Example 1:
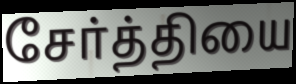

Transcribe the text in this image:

சேர்த்தியை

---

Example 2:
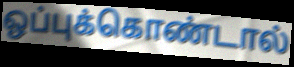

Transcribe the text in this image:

ஒப்புக்கொண்டால்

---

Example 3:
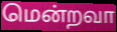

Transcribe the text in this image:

மென்றவா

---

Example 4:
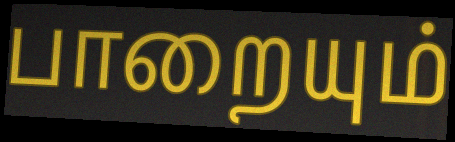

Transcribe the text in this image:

பாறையும்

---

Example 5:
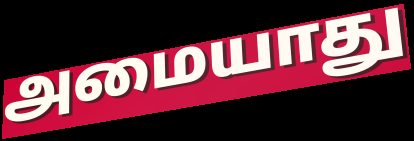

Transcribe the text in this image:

அமையாது